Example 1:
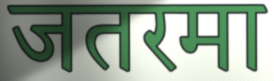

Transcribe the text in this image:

जतरमा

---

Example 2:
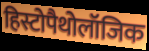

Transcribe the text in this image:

हिस्टोपैथोलॉजिक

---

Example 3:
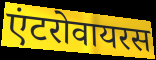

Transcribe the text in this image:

एंटरोवायरस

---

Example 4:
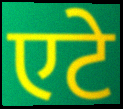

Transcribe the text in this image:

एटे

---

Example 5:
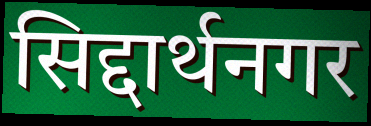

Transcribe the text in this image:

सिद्दार्थनगर